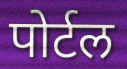
पोर्टल